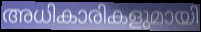
അധികാരികളുമായി